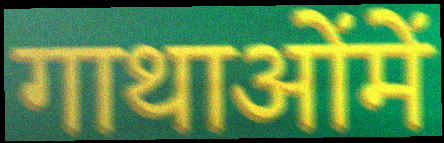
गाथाओंमें